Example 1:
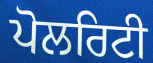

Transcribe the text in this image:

ਪੋਲਰਿਟੀ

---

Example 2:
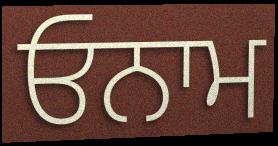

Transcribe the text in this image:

ਓਨਾਮ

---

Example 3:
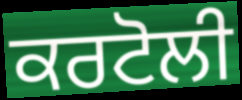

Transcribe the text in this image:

ਕਰਟੋਲੀ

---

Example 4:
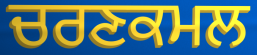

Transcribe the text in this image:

ਚਰਣਕਮਲ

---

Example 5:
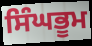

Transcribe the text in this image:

ਸਿੰਘਭੂਮ